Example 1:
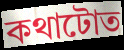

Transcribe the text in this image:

কথাটোত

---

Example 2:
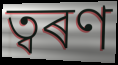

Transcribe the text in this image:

ত্বৰণ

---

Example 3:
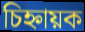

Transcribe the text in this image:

চিহ্নায়ক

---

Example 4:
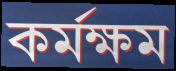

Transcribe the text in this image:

কৰ্মক্ষম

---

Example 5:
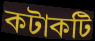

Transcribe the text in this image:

কটাকটি